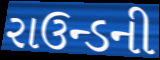
રાઉન્ડની